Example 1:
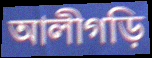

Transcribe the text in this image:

আলীগড়ি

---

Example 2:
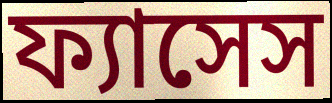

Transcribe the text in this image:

ফ্যাসেস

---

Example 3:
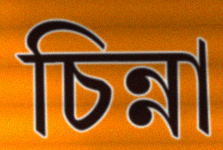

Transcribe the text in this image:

চিন্না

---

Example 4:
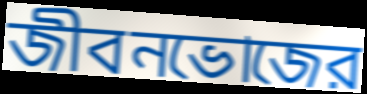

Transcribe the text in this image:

জীবনভোজের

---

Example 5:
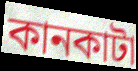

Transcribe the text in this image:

কানকাটা